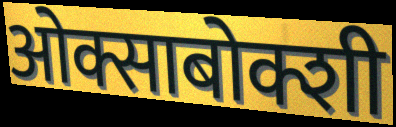
ओक्साबोक्शी